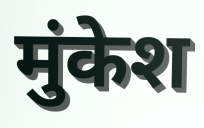
मुंकेश